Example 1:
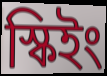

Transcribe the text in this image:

স্কিইং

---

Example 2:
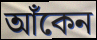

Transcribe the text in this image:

আঁকেন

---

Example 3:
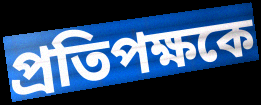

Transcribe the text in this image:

প্রতিপক্ষকে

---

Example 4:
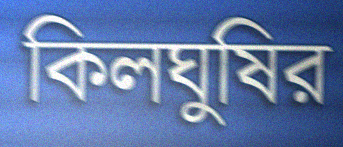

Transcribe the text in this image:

কিলঘুষির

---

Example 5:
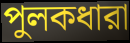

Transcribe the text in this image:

পুলকধারা